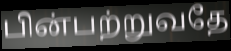
பின்பற்றுவதே